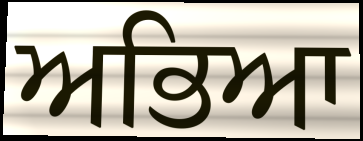
ਅਭਿਆ